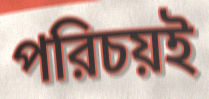
পরিচয়ই